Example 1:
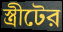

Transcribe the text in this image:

স্ত্রীটের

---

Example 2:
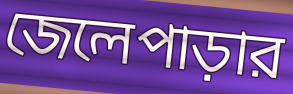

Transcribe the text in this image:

জেলেপাড়ার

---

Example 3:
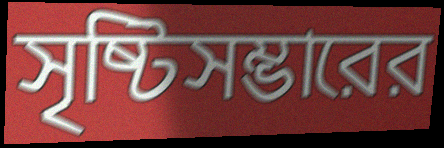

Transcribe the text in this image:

সৃষ্টিসম্ভারের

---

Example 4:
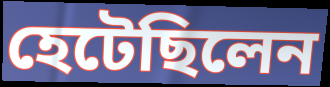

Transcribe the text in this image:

হেটেছিলেন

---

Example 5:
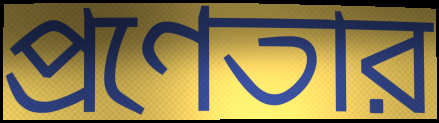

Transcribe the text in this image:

প্রণেতার